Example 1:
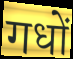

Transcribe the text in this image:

गधों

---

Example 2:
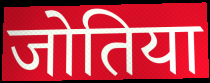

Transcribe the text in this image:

जोतिया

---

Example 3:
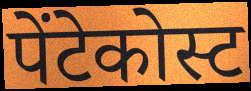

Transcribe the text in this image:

पेंटेकोस्ट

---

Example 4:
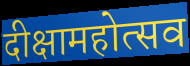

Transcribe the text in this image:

दीक्षामहोत्सव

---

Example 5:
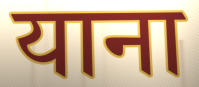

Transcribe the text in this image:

याना